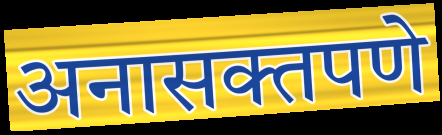
अनासक्तपणे